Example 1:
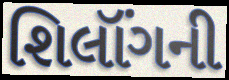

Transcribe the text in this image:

શિલૉંગની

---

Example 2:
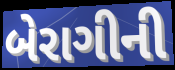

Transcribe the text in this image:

બેરાગીની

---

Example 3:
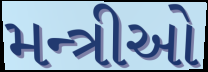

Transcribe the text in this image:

મન્ત્રીઓ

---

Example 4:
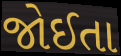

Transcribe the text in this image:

જોઈતા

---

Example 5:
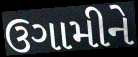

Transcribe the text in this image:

ઉગામીને